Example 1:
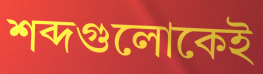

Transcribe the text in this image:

শব্দগুলোকেই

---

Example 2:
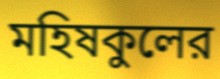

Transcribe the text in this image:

মহিষকুলের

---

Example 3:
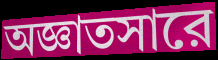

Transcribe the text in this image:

অজ্ঞাতসারে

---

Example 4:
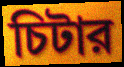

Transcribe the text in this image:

চিটার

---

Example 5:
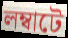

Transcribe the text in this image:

লম্বাটে